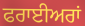
ਫਰਾਈਅਰਾਂ